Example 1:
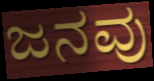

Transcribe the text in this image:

ಜನವು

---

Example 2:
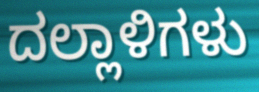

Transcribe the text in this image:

ದಲ್ಲಾಳಿಗಳು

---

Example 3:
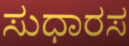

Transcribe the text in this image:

ಸುಧಾರಸ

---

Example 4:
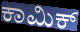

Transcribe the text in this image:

ಕಾಮಿಕ್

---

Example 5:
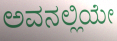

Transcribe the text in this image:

ಅವನಲ್ಲಿಯೇ